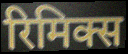
रिमिक्स